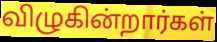
விழுகின்றார்கள்